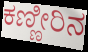
ಕಣ್ಣೀರಿನ